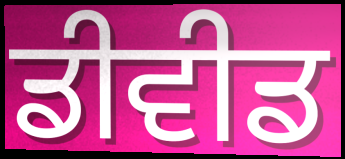
ਡੀਵੀਡ